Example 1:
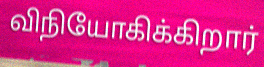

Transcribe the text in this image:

விநியோகிக்கிறார்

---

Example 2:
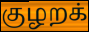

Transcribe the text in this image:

குழறக்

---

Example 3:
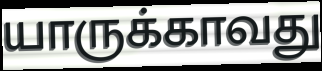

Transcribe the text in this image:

யாருக்காவது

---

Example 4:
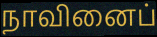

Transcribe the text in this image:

நாவினைப்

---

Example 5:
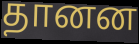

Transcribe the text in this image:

தானன